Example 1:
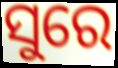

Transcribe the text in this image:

ସୁରେ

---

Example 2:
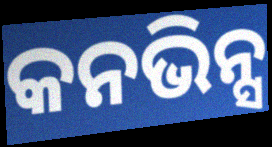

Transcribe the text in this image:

କନଭିନ୍ସ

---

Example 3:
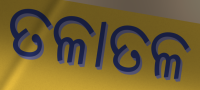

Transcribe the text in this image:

ତଳାତଳ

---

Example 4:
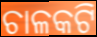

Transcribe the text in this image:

ଚାଳକଟି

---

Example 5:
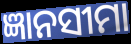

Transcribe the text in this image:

ଜ୍ଞାନସୀମା